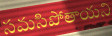
సమసిపోతాయని